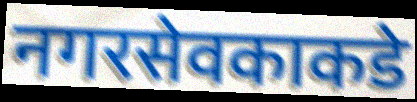
नगरसेवकाकडे